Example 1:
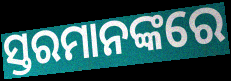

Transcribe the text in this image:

ସ୍ତରମାନଙ୍କରେ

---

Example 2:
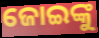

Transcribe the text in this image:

ଜୋଇଙ୍କୁ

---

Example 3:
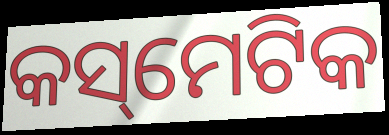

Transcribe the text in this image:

କସ୍‌ମେଟିକ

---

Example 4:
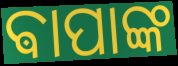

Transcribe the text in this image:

ଵାପାଙ୍କ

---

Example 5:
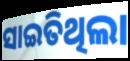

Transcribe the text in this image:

ସାଇତିଥିଲା